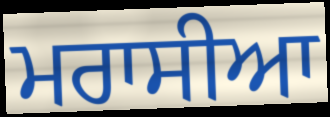
ਮਰਾਸੀਆ